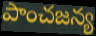
పాంచజన్య